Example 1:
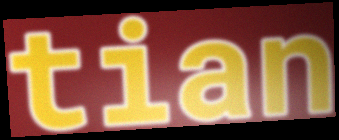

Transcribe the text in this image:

tian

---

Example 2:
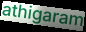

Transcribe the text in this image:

athigaram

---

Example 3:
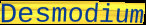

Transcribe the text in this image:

Desmodium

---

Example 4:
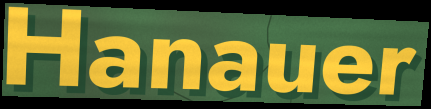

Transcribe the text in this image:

Hanauer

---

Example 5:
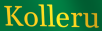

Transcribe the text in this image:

Kolleru